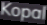
Kopal